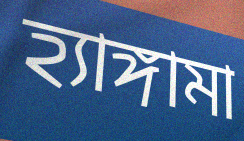
হ্যাঙ্গামা